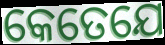
କେତେଯେ